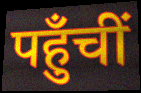
पहुँचीं